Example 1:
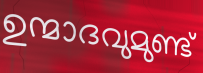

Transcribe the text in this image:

ഉന്മാദവുമുണ്ട്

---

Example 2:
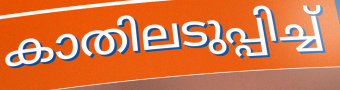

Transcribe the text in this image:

കാതിലടുപ്പിച്ച്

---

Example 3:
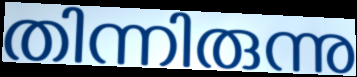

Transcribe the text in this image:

തിന്നിരുന്നു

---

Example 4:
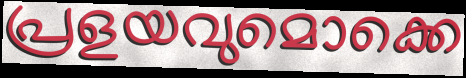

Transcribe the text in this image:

പ്രളയവുമൊക്കെ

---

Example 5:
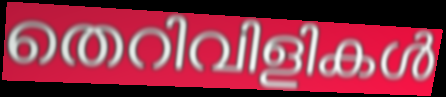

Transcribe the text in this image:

തെറിവിളികൾ